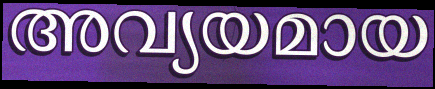
അവ്യയമായ